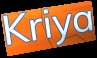
Kriya